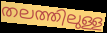
തലത്തിലുള്ള